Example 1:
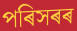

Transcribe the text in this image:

পৰিসৰৰ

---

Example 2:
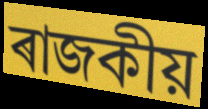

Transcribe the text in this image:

ৰাজকীয়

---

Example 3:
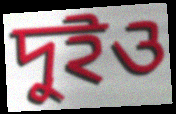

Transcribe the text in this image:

দুইও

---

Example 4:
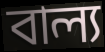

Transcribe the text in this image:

বাল্য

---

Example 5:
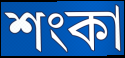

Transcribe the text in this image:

শংকা